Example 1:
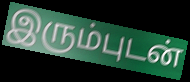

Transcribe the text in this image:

இரும்புடன்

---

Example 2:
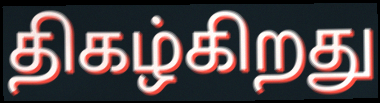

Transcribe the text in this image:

திகழ்கிறது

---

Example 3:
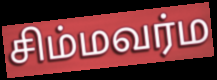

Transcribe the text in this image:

சிம்மவர்ம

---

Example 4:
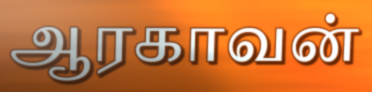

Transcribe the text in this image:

ஆரகாவன்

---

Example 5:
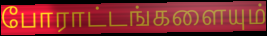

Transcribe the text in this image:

போராட்டங்களையும்